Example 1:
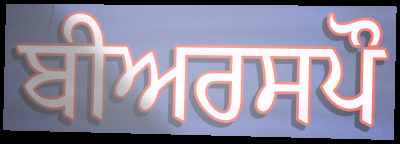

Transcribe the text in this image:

ਬੀਅਰਸਪੌ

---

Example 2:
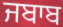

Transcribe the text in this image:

ਜਬਾਬ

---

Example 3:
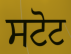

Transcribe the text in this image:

ਸਟੋਟ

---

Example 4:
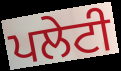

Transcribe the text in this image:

ਪਲੇਟੀ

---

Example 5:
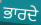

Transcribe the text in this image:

ਭਾਰਦੇ